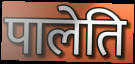
पालेति